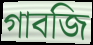
গাবজি